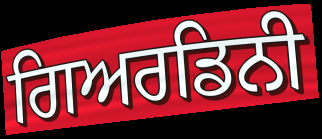
ਗਿਅਰਡਿਨੀ